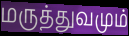
மருத்துவமும்